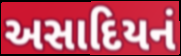
અસાદિયનં